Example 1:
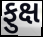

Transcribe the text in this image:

ફુક્ષ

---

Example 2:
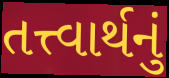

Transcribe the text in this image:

તત્ત્વાર્થનું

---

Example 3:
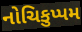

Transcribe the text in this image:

નોચિકુપ્પમ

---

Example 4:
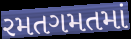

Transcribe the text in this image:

રમતગમતમાં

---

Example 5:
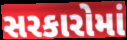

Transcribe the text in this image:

સરકારોમાં